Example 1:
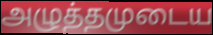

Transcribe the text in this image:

அழுத்தமுடைய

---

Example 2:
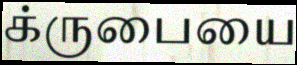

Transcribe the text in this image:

க்ருபையை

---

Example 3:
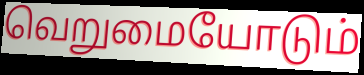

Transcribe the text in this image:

வெறுமையோடும்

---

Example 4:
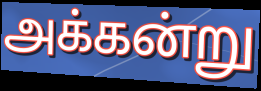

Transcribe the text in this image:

அக்கன்று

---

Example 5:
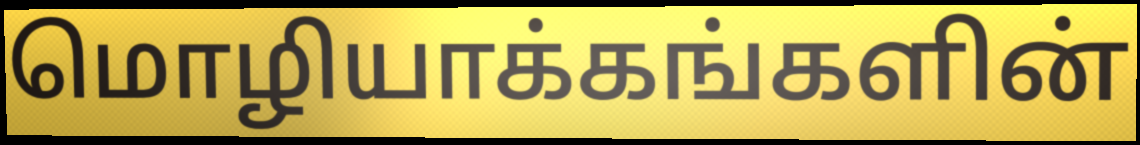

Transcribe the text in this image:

மொழியாக்கங்களின்